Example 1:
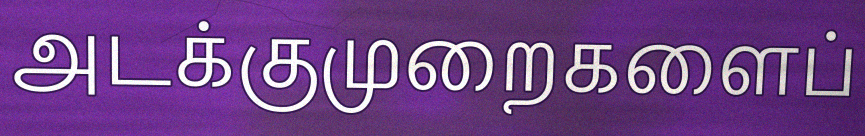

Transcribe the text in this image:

அடக்குமுறைகளைப்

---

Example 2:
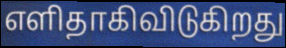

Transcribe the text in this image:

எளிதாகிவிடுகிறது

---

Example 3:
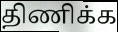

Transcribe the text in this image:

திணிக்க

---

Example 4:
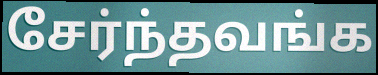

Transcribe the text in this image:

சேர்ந்தவங்க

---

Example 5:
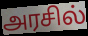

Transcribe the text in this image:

அரசில்